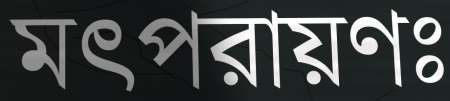
মৎপরায়ণঃ